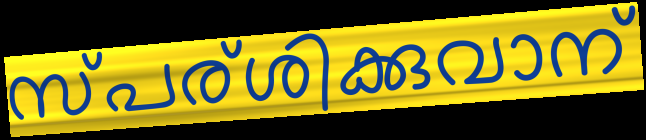
സ്പര്ശിക്കുവാന്